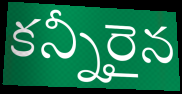
కన్నీరైన